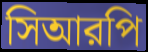
সিআরপি